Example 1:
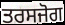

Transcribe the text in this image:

ਤਰਸਜੋਗ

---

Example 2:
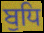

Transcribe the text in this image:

ਬੁਧਿ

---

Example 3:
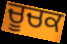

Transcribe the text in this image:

ਚੂਚਕ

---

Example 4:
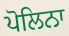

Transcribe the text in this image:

ਪੋਲਿਨਾ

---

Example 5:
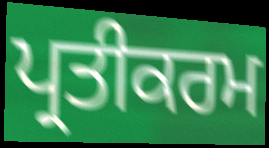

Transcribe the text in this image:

ਪ੍ਰਤੀਕਰਮ